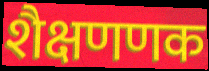
शैक्षणणक